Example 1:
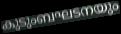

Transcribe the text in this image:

കുടുംബഘടനയും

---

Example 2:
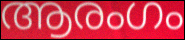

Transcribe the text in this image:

ആരംഗം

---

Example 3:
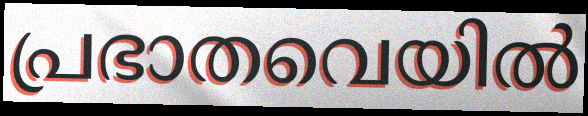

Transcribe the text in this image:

പ്രഭാതവെയിൽ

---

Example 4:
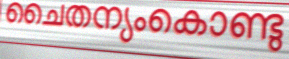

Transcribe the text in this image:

ചൈതന്യംകൊണ്ടു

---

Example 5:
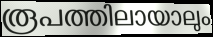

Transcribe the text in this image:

രൂപത്തിലായാലും